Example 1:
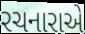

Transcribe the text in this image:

રચનારાએ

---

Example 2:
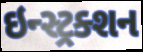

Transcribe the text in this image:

ઇન્સ્ટ્રક્શન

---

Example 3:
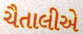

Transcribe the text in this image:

ચૈતાલીએ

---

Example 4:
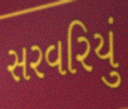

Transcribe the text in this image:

સરવરિયું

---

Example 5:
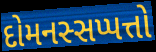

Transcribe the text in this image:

દોમનસ્સપ્પત્તો